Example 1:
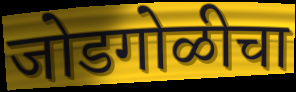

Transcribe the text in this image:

जोडगोळीचा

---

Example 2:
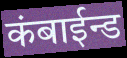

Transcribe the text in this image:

कंबाईन्ड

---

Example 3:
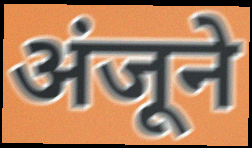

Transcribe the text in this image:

अंजूने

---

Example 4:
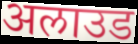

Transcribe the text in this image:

अलाउड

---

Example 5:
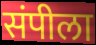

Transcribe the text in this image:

संपीला